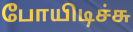
போயிடிச்சு